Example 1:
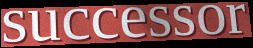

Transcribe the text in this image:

successor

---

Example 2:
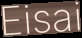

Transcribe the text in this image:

Eisai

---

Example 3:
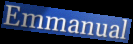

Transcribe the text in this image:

Emmanual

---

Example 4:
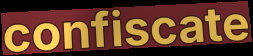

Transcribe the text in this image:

confiscate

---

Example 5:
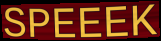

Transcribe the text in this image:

SPEEEK